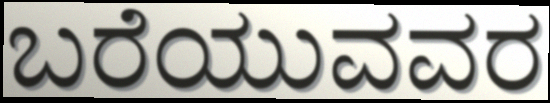
ಬರೆಯುವವರ